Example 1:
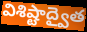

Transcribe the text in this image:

విశిష్టాద్వైత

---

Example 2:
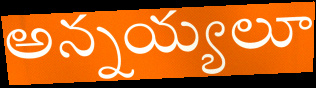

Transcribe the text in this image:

అన్నయ్యలూ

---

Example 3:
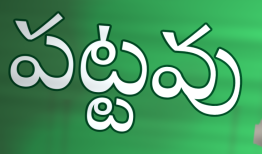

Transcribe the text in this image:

పట్టవు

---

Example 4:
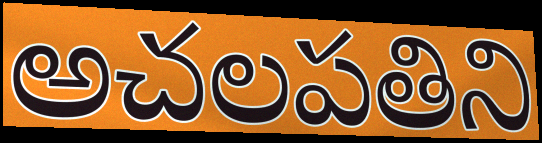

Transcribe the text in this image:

అచలపతిని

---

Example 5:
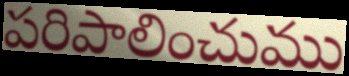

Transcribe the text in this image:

పరిపాలించుము